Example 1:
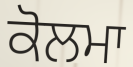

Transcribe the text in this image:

ਕੋਲਮਾ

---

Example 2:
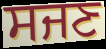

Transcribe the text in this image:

ਸਜਣ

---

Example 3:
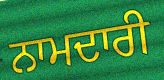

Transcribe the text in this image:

ਨਾਮਦਾਰੀ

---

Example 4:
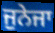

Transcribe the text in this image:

ਜੁਨੇਜਾ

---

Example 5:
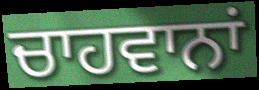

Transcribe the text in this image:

ਚਾਹਵਾਨਾਂ